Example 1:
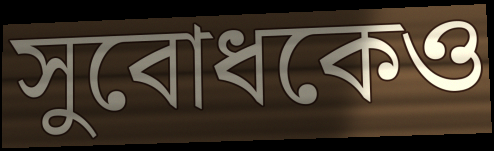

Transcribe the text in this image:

সুবোধকেও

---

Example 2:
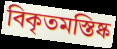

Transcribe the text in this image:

বিকৃতমস্তিষ্ক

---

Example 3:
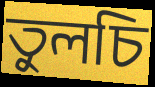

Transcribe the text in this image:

তুলচি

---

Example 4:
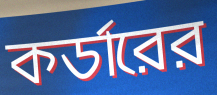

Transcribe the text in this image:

কর্ডারের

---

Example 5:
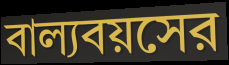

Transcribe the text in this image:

বাল্যবয়সের